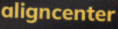
aligncenter